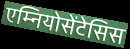
एम्नियोसेंटेसिस